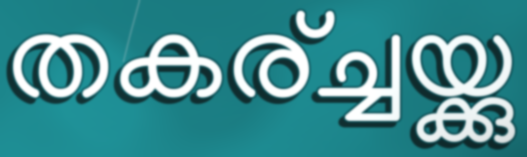
തകര്ച്ചയ്ക്കു